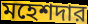
মহেশদার